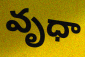
వృధా